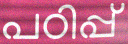
പഠിപ്പ്